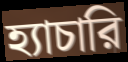
হ্যাচারি